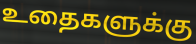
உதைகளுக்கு